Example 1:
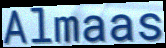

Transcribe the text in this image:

Almaas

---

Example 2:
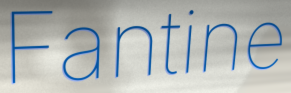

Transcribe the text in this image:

Fantine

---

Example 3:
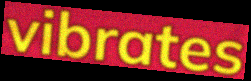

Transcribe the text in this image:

vibrates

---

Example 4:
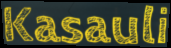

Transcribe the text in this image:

Kasauli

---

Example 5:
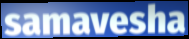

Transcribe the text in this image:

samavesha